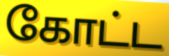
கோட்ட